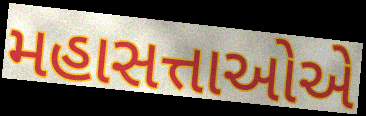
મહાસત્તાઓએ